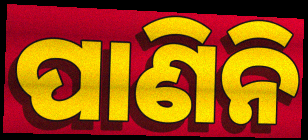
ପାଣିନି